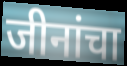
जीनांचा